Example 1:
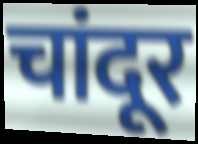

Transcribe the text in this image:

चांदूर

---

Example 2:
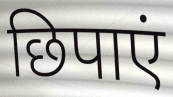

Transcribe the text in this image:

छिपाएं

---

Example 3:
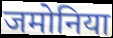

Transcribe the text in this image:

जमोनिया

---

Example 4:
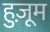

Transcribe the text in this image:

हुज़ूम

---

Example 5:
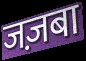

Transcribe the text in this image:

जज़बा